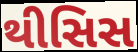
થીસિસ